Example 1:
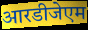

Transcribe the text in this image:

आरडीजेएम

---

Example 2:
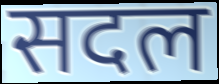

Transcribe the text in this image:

सदल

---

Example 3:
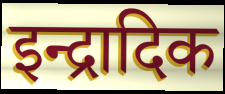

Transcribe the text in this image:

इन्द्रादिक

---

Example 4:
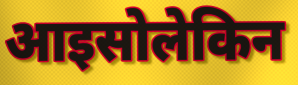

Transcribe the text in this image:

आइसोलेकिन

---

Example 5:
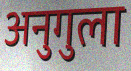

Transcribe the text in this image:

अनुगुला